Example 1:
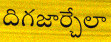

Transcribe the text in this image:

దిగజార్చేలా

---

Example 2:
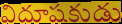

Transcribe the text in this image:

విదూషకుడు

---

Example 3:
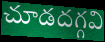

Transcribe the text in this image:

చూడదగ్గవి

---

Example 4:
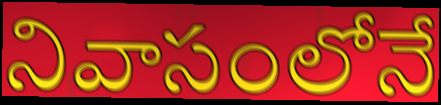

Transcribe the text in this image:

నివాసంలోనే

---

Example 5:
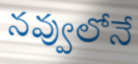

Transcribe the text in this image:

నవ్వులోనే